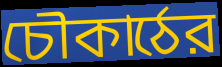
চৌকাঠের